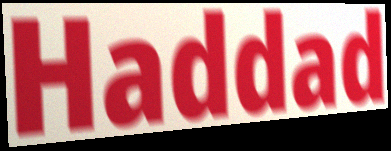
Haddad